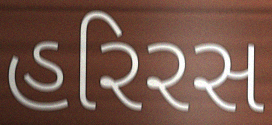
હરિરસ